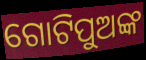
ଗୋଟିପୁଅଙ୍କ